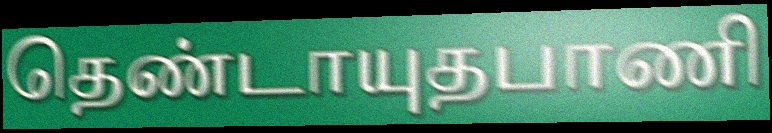
தெண்டாயுதபாணி